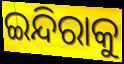
ଇନ୍ଦିରାକୁ